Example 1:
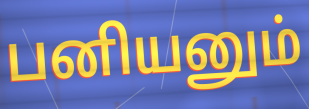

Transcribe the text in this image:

பனியனும்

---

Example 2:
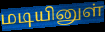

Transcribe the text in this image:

மடியினுள்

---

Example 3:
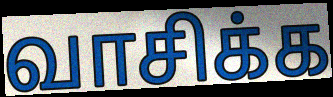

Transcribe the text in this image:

வாசிக்க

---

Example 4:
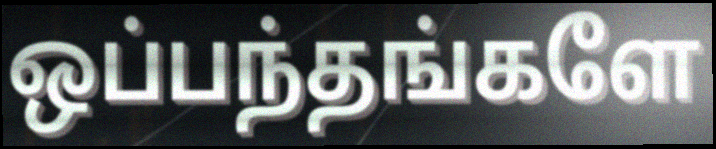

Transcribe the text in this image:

ஒப்பந்தங்களே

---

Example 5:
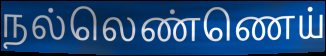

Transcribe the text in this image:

நல்லெண்ணெய்